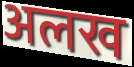
अलख